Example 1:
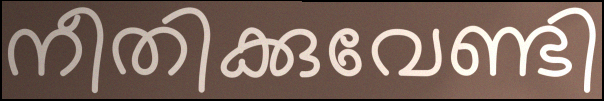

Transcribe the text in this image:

നീതിക്കുവേണ്ടി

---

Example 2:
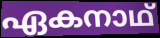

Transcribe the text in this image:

ഏകനാഥ്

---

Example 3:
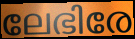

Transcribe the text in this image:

ലേഭിരേ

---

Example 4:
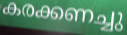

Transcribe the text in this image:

കരക്കണച്ചു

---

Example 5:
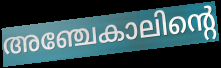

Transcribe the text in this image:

അഞ്ചേകാലിന്റെ